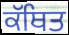
ਕੱਥਿਤ